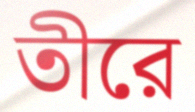
তীরে